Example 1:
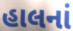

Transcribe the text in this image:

હાલનાં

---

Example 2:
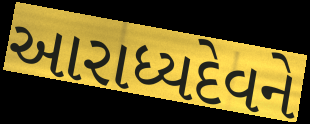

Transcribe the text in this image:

આરાધ્યદેવને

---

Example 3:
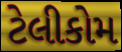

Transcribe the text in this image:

ટેલીકોમ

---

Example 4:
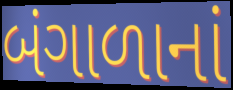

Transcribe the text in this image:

બંગાળાનાં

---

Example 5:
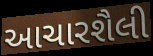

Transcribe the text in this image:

આચારશૈલી